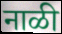
नाळी